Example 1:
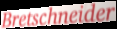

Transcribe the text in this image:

Bretschneider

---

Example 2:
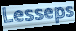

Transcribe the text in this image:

Lesseps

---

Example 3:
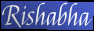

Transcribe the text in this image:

Rishabha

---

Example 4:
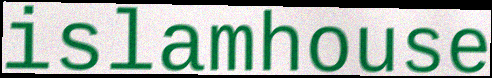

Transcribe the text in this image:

islamhouse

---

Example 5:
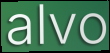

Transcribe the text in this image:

alvo